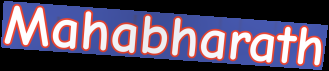
Mahabharath